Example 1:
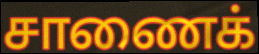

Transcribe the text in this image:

சாணைக்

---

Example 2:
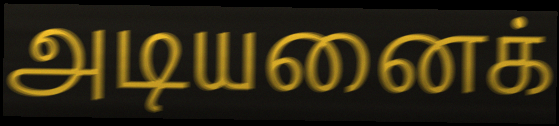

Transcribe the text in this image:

அடியனைக்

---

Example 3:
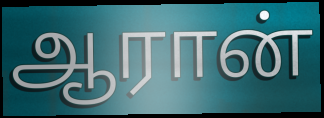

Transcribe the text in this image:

ஆரான்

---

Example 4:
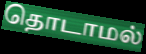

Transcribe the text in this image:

தொடாமல்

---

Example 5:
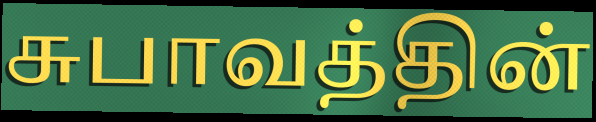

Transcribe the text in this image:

சுபாவத்தின்